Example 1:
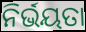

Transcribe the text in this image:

ନିର୍ଭୟତା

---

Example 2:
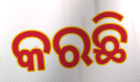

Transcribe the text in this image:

କରଛି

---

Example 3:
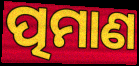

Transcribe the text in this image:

ତ୍ପମାଣ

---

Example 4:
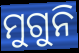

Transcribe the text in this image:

ମୁଗୁନି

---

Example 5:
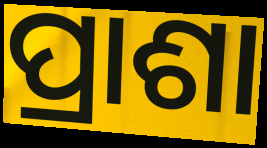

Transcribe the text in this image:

ପ୍ରାଶା